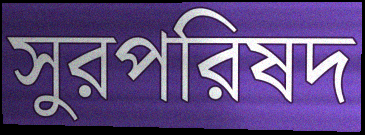
সুরপরিষদ